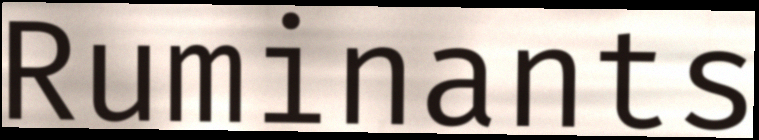
Ruminants